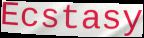
Ecstasy